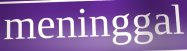
meninggal